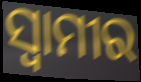
ସ୍ଵାମୀର